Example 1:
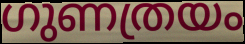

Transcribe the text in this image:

ഗുണത്രയം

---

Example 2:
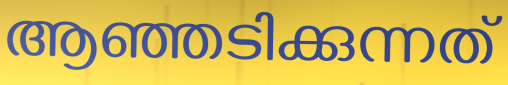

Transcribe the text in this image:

ആഞ്ഞടിക്കുന്നത്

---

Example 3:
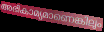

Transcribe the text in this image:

അഭികാമ്യമാണെങ്കിലും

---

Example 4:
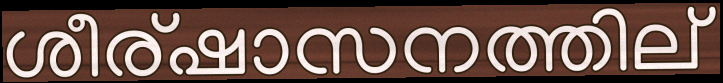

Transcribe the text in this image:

ശീര്ഷാസനത്തില്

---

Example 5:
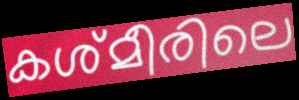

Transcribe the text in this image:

കശ്മീരിലെ